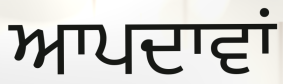
ਆਪਦਾਵਾਂ